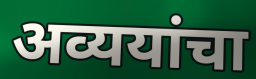
अव्ययांचा